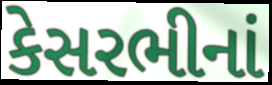
કેસરભીનાં